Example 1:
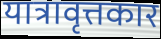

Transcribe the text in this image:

यात्रावृत्तकार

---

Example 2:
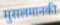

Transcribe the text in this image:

मुसलमानकी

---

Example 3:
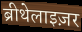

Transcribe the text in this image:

ब्रीथेलाइज़र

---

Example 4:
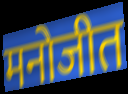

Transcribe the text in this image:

मनोजीत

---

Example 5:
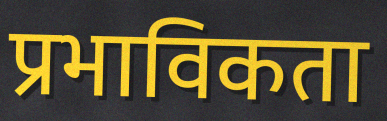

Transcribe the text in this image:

प्रभाविकता